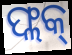
ଫ୍ଲକ୍